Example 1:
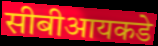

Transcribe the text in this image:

सीबीआयकडे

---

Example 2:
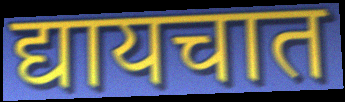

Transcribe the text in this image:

द्यायचात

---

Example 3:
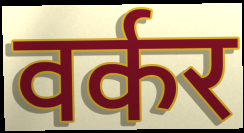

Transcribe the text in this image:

वर्कर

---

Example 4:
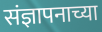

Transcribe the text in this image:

संज्ञापनाच्या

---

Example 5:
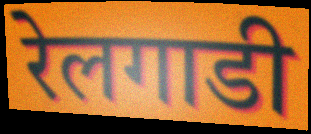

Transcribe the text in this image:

रेलगाडी